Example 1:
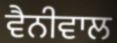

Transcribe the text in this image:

ਵੈਨੀਵਾਲ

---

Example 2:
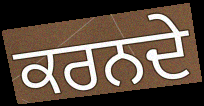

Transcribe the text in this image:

ਕਰਨਦੇ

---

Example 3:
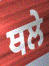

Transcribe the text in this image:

ਥਲੇ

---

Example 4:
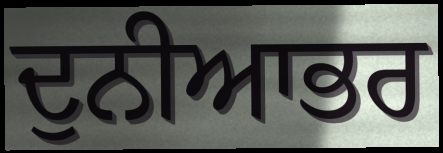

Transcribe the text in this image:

ਦੁਨੀਆਭਰ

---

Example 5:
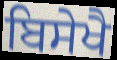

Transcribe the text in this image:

ਬਿਸੇਖੈ